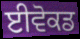
ਈਵੋਕਡ